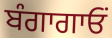
ਬੰਗਾਗਾਓਂ